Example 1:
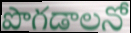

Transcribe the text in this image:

పొగడాలనో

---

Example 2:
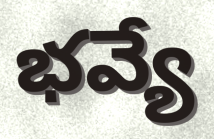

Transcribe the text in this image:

భవ్యే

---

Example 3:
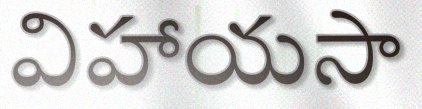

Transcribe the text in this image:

విహాయసా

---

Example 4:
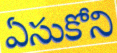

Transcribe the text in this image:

ఏసుకోని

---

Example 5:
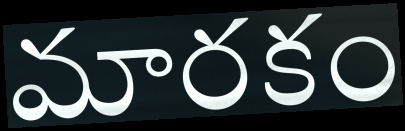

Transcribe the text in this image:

మారకం